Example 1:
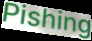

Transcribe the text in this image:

Pishing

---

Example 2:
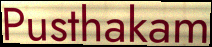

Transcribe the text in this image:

Pusthakam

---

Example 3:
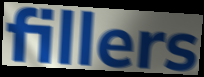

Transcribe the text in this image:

fillers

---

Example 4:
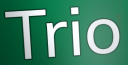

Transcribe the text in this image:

Trio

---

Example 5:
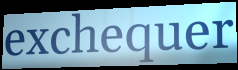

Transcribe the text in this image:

exchequer